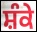
ਸ਼ੰਕੇ